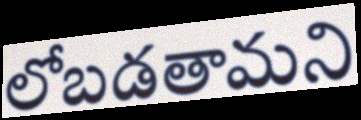
లోబడతామని